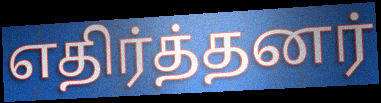
எதிர்த்தனர்